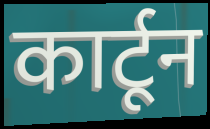
कार्टून